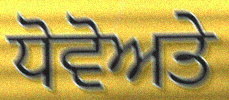
ਧੋਵੋਅਤੇ